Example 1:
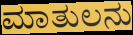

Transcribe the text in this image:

ಮಾತುಲನು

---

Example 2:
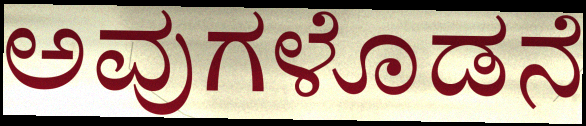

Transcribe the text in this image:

ಅವುಗಳೊಡನೆ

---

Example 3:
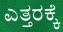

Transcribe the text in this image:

ಎತ್ತರಕ್ಕೆ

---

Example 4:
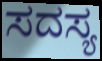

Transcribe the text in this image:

ಸದಸ್ಯ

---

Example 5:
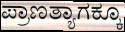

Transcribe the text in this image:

ಪ್ರಾಣತ್ಯಾಗಕ್ಕೂ